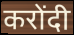
करोंदी